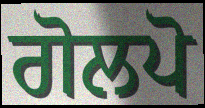
ਗੋਲਪੋ